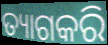
ତ୍ୟାଗକରି